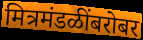
मित्रमंडळींबरोबर